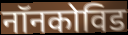
नॉनकोविड